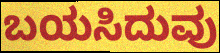
ಬಯಸಿದುವು